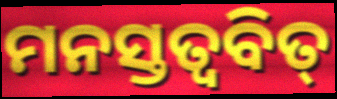
ମନସ୍ତତ୍ଵବିତ୍